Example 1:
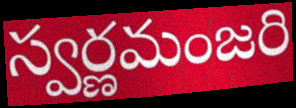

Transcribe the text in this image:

స్వర్ణమంజరి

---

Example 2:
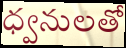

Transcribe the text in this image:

ధ్వనులతో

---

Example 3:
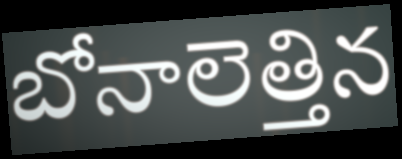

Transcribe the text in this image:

బోనాలెత్తిన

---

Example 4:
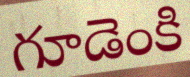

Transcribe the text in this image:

గూడెంకి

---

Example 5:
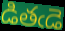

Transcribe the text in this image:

డితఁడె